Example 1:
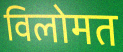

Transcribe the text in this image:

विलोमत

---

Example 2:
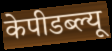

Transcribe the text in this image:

केपीडब्ल्यू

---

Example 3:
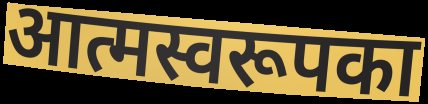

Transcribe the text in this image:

आत्मस्वरूपका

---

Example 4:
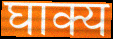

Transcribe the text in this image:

घाक्य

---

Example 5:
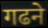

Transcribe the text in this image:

गढने